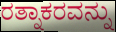
ರತ್ನಾಕರವನ್ನು